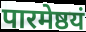
पारमेष्ठयं